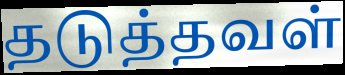
தடுத்தவள்